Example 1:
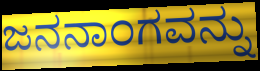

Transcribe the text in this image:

ಜನನಾಂಗವನ್ನು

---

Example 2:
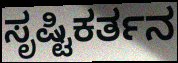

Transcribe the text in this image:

ಸೃಷ್ಟಿಕರ್ತನ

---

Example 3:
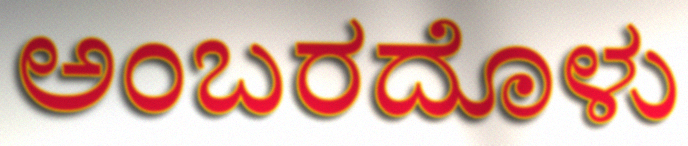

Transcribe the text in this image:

ಅಂಬರದೊಳು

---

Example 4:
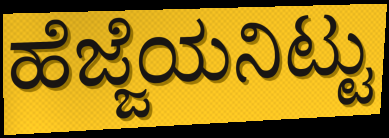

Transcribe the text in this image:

ಹೆಜ್ಜೆಯನಿಟ್ಟು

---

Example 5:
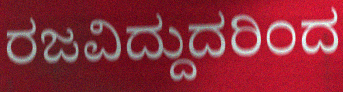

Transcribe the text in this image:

ರಜವಿದ್ದುದರಿಂದ